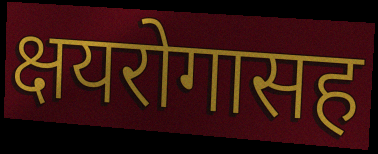
क्षयरोगासह